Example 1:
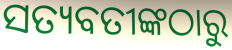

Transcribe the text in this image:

ସତ୍ୟବତୀଙ୍କଠାରୁ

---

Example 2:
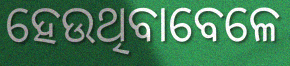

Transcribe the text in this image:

ହେଉଥିବାବେଳେ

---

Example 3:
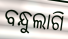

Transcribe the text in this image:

ବନ୍ଧୁଲାଗି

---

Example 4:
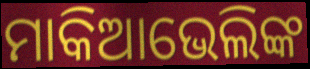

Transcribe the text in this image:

ମାକିଆଭେଲିଙ୍କ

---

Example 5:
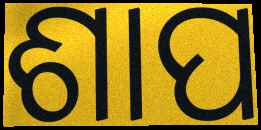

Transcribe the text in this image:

ଶାପ